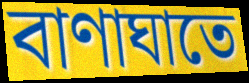
বাণাঘাতে